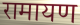
रामायण